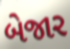
બેજાર